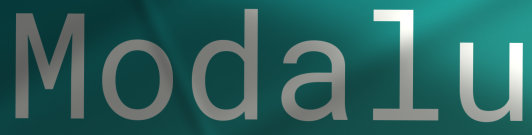
Modalu